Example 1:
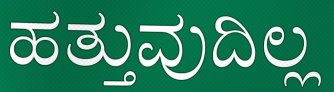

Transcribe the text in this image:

ಹತ್ತುವುದಿಲ್ಲ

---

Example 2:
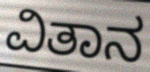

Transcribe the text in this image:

ವಿತಾನ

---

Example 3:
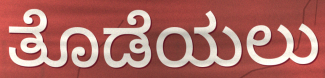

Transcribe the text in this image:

ತೊಡೆಯಲು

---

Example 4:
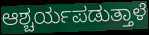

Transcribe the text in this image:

ಆಶ್ಚರ್ಯಪಡುತ್ತಾಳೆ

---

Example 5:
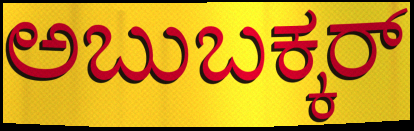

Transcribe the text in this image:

ಅಬುಬಕ್ಕರ್